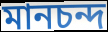
মানচন্দ